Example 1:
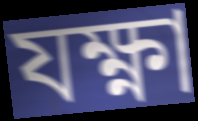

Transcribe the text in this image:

যক্ষ্ণা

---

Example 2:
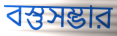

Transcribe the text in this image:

বস্তুসম্ভার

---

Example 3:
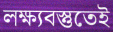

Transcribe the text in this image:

লক্ষ্যবস্তুতেই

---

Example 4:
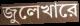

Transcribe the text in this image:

জুলেখারে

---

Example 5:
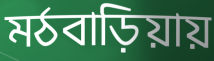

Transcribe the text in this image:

মঠবাড়িয়ায়